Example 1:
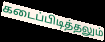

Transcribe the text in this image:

கடைப்பிடித்தலும்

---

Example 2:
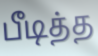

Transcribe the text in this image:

பீடித்த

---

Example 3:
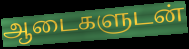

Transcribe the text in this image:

ஆடைகளுடன்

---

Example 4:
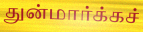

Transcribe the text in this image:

துன்மார்க்கச்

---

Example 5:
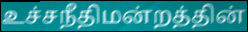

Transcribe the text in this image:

உச்சநீதிமன்றத்தின்